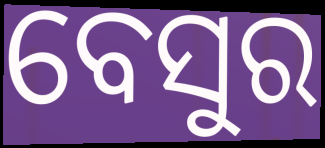
ବେସୁର